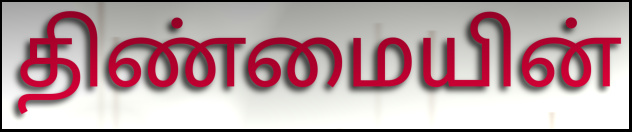
திண்மையின்